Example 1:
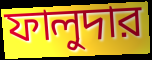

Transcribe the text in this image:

ফালুদার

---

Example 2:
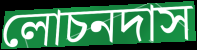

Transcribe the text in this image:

লোচনদাস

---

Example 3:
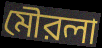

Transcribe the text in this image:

মৌরলা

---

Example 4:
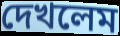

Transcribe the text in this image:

দেখলেম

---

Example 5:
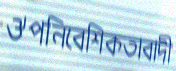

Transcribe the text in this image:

ঔপনিবেশিকতাবাদী